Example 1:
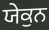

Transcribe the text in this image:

ਯੇਕੁਨ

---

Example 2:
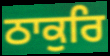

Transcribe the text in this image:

ਠਾਕੁਰਿ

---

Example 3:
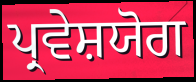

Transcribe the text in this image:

ਪ੍ਰਵੇਸ਼ਯੋਗ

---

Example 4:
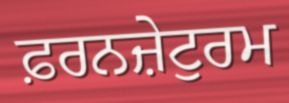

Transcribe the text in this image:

ਫ਼ਰਨਜ਼ੇਟੁਰਮ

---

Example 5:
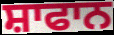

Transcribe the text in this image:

ਸ਼ਾਫਾਨ